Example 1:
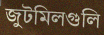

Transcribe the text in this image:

জুটমিলগুলি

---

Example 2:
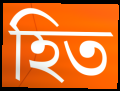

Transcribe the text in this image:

হিত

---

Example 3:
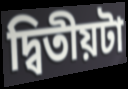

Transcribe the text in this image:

দ্বিতীয়টা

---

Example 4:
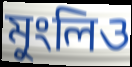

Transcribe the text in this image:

মুংলিও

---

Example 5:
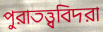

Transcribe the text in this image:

পুরাতত্ত্ববিদরা